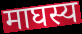
माघस्य